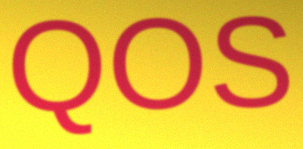
QOS